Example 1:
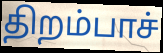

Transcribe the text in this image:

திறம்பாச்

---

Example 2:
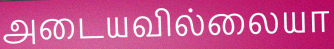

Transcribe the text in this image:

அடையவில்லையா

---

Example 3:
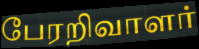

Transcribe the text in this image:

பேரறிவாளர்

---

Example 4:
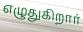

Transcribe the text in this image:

எழுதுகிறார்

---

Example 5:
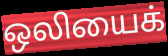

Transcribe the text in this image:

ஒலியைக்